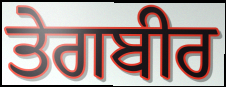
ਤੇਗਬੀਰ